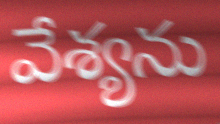
వేశ్యను